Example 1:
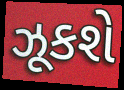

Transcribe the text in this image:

ઝૂકશે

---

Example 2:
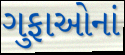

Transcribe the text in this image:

ગુફાઓનાં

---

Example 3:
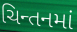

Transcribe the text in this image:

ચિન્તનમાં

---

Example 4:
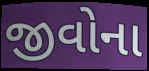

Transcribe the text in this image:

જીવોના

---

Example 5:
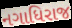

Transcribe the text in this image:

નગાધિરાજ